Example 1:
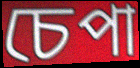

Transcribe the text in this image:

চেপা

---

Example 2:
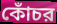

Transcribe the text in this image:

কোঁচর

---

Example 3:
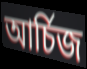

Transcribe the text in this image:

আর্চিজ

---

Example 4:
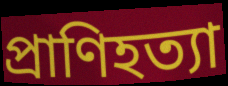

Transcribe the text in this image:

প্রাণিহত্যা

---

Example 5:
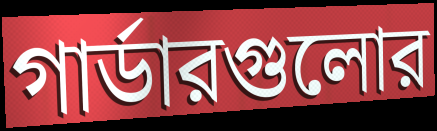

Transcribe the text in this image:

গার্ডারগুলোর